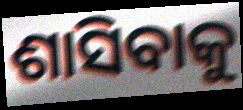
ଶାସିବାକୁ